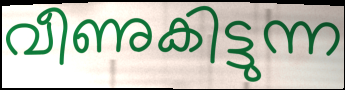
വീണുകിട്ടുന്ന